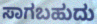
ಸಾಗಬಹುದು